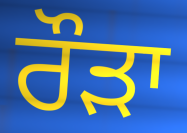
ਰੌੜਾ